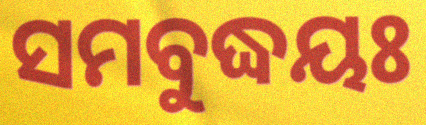
ସମବୁଦ୍ଧୟଃ